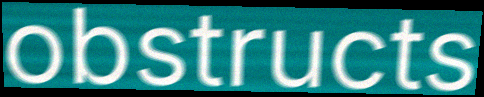
obstructs